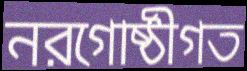
নরগোষ্ঠীগত